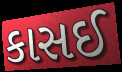
કાસઈ